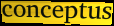
conceptus